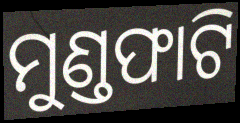
ମୁଣ୍ଡଫାଟି